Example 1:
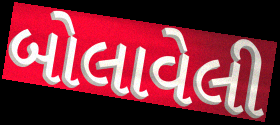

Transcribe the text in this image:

બોલાવેલી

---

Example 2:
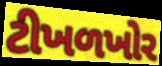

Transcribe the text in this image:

ટીખળખોર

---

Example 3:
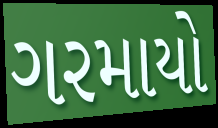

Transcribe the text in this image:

ગરમાયો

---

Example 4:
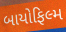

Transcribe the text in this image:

બાયોફિલ્મ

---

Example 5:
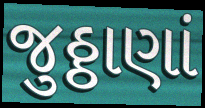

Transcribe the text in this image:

જુઠ્ઠાણાં